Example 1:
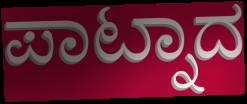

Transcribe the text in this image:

ಪಾಟ್ನಾದ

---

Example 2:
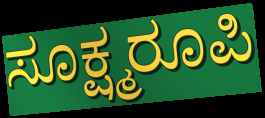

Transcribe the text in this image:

ಸೂಕ್ಷ್ಮರೂಪಿ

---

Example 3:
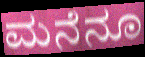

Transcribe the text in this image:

ಮನೆನೂ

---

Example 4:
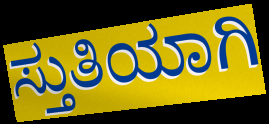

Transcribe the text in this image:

ಸ್ತುತಿಯಾಗಿ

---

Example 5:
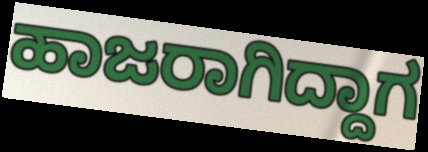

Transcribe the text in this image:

ಹಾಜರಾಗಿದ್ದಾಗ